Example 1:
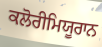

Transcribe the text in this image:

ਕਲੋਰੀਮਿਯੂਰਾਨ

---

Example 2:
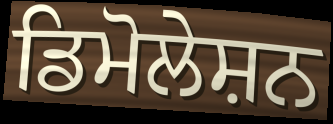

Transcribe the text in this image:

ਡਿਮੋਲੇਸ਼ਨ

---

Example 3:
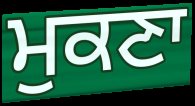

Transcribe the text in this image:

ਮੁਕਣਾ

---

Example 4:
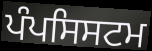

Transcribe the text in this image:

ਪੰਪਸਿਸਟਮ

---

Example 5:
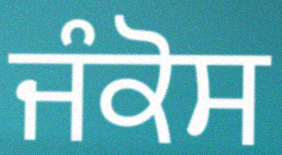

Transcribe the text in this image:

ਜੰਕੋਸ